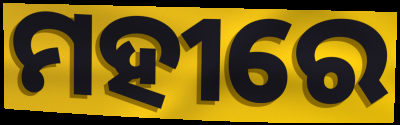
ମହୀରେ